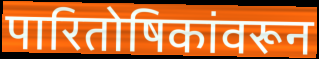
पारितोषिकांवरून